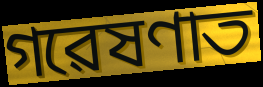
গৱেষণাত